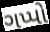
ગપ્પો